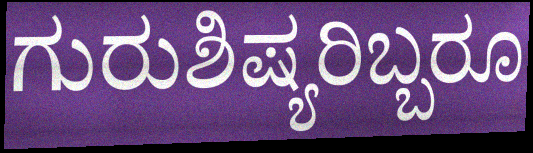
ಗುರುಶಿಷ್ಯರಿಬ್ಬರೂ